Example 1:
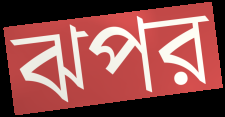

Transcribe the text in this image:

ঝপর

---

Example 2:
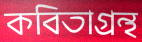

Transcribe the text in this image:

কবিতাগ্রন্থ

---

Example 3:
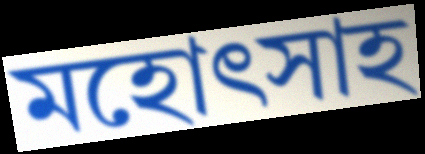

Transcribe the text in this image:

মহোৎসাহ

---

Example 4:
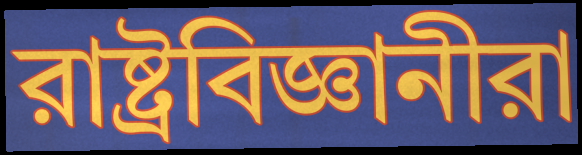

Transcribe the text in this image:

রাষ্ট্রবিজ্ঞানীরা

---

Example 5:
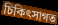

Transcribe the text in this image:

চিকিৎসাগত